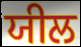
ਯੀਲ